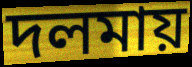
দলমায়